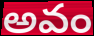
అవం